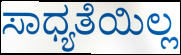
ಸಾಧ್ಯತೆಯಿಲ್ಲ